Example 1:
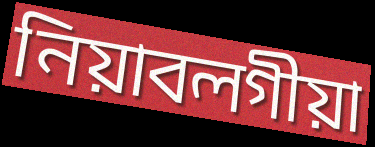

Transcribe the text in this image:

নিয়াবলগীয়া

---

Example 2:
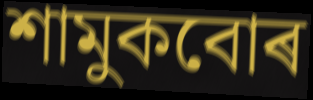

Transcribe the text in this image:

শামুকবোৰ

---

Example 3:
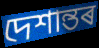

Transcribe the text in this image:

দেশান্তৰ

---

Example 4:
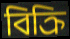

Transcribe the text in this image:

বিক্ৰি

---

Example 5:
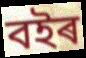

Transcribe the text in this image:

বইৰ